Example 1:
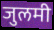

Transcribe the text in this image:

जुलमी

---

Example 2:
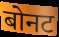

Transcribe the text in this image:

बोनट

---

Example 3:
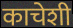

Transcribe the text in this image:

काचेशी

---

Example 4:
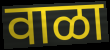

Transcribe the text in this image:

वाळा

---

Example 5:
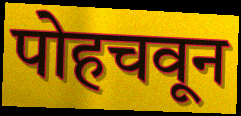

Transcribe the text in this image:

पोहचवून